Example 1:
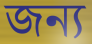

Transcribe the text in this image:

জন্য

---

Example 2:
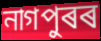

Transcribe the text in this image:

নাগপুৰৰ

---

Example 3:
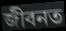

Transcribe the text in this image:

জীবনত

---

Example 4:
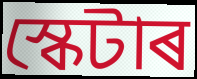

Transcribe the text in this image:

স্কেটাৰ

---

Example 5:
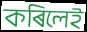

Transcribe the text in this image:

কৰিলেই